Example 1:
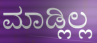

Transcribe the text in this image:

ಮಾಡ್ಲಿಲ್ಲ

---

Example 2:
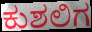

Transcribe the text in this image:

ಕುಶಲಿಗ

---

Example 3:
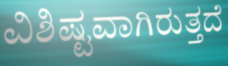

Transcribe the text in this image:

ವಿಶಿಷ್ಟವಾಗಿರುತ್ತದೆ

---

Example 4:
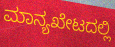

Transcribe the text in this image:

ಮಾನ್ಯಖೇಟದಲ್ಲಿ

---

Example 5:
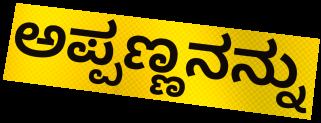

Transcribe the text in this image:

ಅಪ್ಪಣ್ಣನನ್ನು